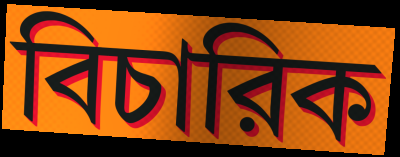
বিচারিক